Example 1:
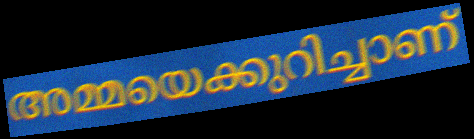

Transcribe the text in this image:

അമ്മയെക്കുറിച്ചാണ്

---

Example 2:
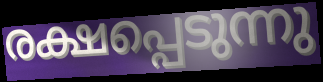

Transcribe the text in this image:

രക്ഷപ്പെടുന്നു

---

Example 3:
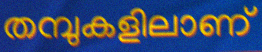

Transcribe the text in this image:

തമ്പുകളിലാണ്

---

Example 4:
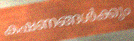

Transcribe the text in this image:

കഷണങ്ങൾക്കും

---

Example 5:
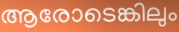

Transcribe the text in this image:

ആരോടെങ്കിലും